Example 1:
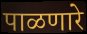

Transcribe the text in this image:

पाळणारे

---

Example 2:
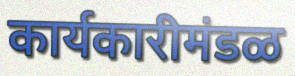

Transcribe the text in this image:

कार्यकारीमंडळ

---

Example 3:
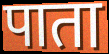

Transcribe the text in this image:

पाता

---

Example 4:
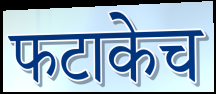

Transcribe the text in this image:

फटाकेच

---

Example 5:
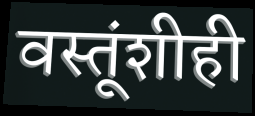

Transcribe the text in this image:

वस्तूंशीही